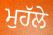
ਮੁਹੱਲੇ